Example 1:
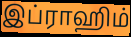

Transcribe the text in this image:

இப்ராஹிம்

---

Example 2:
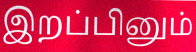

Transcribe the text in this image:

இறப்பினும்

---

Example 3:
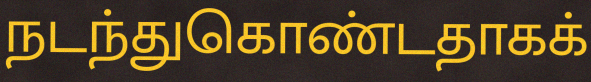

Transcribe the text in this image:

நடந்துகொண்டதாகக்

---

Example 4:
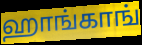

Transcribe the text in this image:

ஹாங்காங்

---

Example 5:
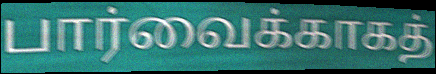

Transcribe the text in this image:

பார்வைக்காகத்